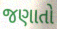
જણાતો